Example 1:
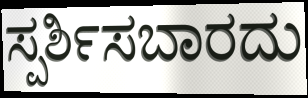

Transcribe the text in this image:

ಸ್ಪರ್ಶಿಸಬಾರದು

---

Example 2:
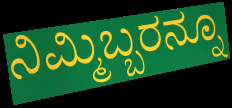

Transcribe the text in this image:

ನಿಮ್ಮಿಬ್ಬರನ್ನೂ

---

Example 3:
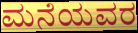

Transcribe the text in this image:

ಮನೆಯವರ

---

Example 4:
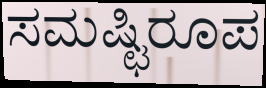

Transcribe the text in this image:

ಸಮಷ್ಟಿರೂಪ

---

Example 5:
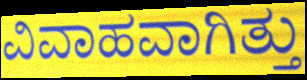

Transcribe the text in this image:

ವಿವಾಹವಾಗಿತ್ತು